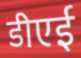
डीएई